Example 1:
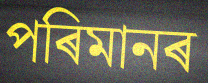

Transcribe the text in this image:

পৰিমানৰ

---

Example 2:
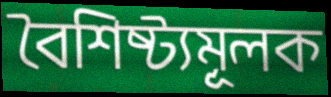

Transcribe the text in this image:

বৈশিষ্ট্যমূলক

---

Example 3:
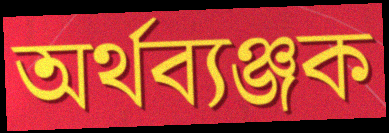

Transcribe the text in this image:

অৰ্থব্যঞ্জক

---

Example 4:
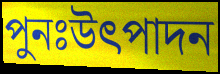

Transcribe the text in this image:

পুনঃউৎপাদন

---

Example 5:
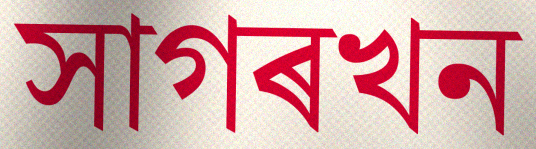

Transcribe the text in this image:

সাগৰখন